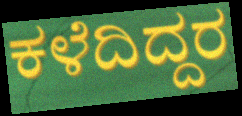
ಕಳೆದಿದ್ದರ